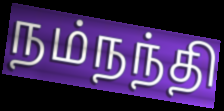
நம்நந்தி